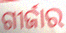
ଗୀର୍ଜାର